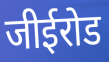
जीईरोड